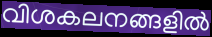
വിശകലനങ്ങളിൽ